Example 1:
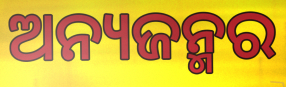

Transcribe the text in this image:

ଅନ୍ୟଜନ୍ମର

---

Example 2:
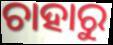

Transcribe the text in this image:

ଚାହାରୁ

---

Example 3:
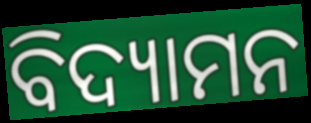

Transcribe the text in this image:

ବିଦ୍ୟାମନ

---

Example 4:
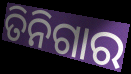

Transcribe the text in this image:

ତିନିଗାର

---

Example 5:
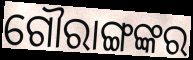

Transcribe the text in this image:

ଗୌରାଙ୍ଗଙ୍କର